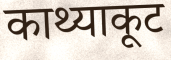
काथ्याकूट